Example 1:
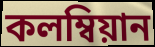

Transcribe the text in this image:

কলম্বিয়ান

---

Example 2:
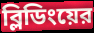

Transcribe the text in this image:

ব্লিডিংয়ের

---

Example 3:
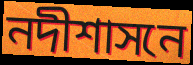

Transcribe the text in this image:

নদীশাসনে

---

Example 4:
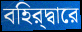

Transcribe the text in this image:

বহির্‌দ্বারে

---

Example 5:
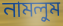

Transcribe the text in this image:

নামলুম